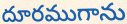
దూరముగాను